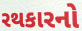
રથકારનો